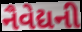
નૈવેદ્યની